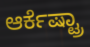
ಆರ್ಕೆಷ್ಟ್ರಾ